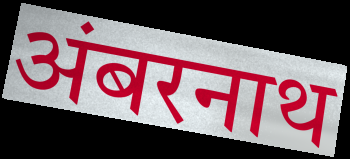
अंबरनाथ